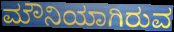
ಮೌನಿಯಾಗಿರುವ